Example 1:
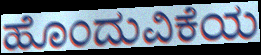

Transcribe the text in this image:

ಹೊಂದುವಿಕೆಯ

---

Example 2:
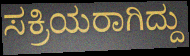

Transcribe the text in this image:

ಸಕ್ರಿಯರಾಗಿದ್ದು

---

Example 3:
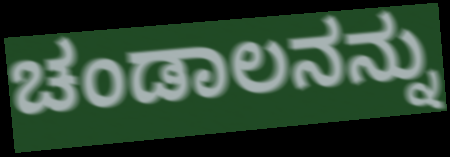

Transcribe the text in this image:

ಚಂಡಾಲನನ್ನು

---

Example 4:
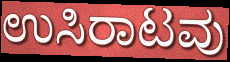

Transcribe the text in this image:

ಉಸಿರಾಟವು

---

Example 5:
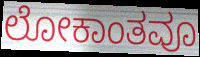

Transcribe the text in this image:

ಲೋಕಾಂತವೂ